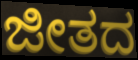
ಜೀತದ